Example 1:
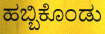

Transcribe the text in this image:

ಹಬ್ಬಿಕೊಂಡು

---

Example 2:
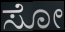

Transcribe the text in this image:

ಸೋ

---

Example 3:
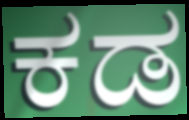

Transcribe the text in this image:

ಕಡ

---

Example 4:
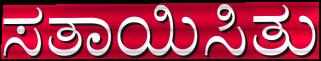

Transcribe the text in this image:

ಸತಾಯಿಸಿತು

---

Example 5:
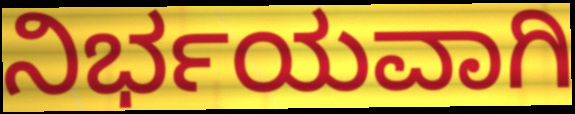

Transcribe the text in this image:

ನಿರ್ಭಯವಾಗಿ